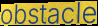
obstacle